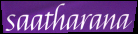
saatharana